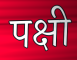
पक्षी